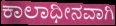
ಕಾಲಾಧೀನವಾಗಿ